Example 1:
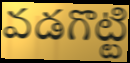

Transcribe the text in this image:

వడగొట్టి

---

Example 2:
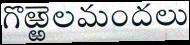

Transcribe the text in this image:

గొఱ్ఱెలమందలు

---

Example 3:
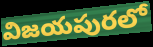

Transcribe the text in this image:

విజయపురలో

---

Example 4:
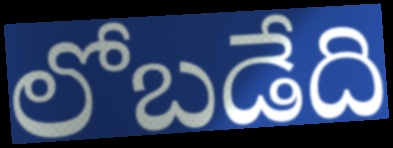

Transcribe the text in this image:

లోబడేది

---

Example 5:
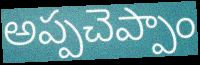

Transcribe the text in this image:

అప్పచెప్పాం